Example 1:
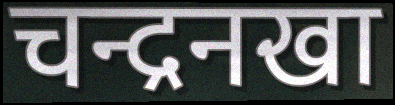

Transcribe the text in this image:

चन्द्रनखा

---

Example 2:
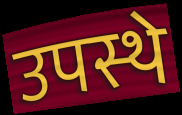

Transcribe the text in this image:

उपस्थे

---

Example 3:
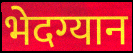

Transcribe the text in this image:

भेदग्यान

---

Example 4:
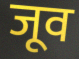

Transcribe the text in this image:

जूव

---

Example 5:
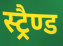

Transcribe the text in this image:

स्ट्रैण्ड